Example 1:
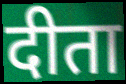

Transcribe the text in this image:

दीता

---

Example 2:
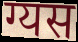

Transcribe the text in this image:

ग्यस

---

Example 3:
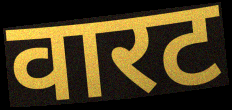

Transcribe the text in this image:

वारट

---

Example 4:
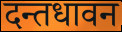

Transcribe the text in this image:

दन्तधावन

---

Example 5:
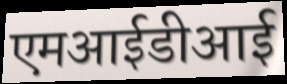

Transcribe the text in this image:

एमआईडीआई